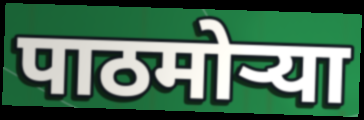
पाठमोऱ्या